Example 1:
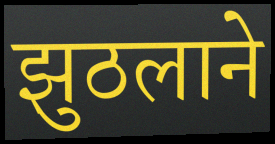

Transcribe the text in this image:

झुठलाने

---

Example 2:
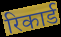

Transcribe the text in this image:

रिकार्ड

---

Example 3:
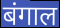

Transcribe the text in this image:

बंगाल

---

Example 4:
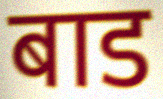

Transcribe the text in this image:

बाड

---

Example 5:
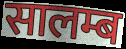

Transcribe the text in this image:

सालम्ब